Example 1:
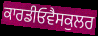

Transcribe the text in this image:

ਕਾਰਡੀਓਵੈਸਕੁਲਰ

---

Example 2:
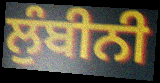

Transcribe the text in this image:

ਲੁੰਬੀਨੀ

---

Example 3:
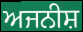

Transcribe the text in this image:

ਅਜਨੀਸ਼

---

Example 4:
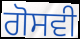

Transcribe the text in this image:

ਗੋਸਵੀ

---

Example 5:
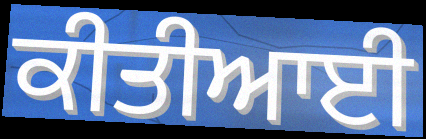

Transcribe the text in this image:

ਕੀਤੀਆਈ